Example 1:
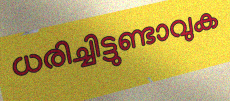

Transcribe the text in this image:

ധരിച്ചിട്ടുണ്ടാവുക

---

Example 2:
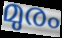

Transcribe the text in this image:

മുരം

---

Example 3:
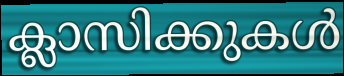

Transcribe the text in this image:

ക്ലാസിക്കുകൾ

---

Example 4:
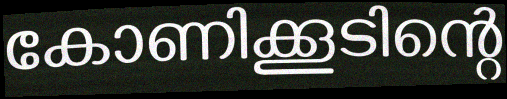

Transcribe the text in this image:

കോണിക്കൂടിന്റെ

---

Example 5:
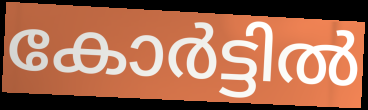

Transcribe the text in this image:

കോർട്ടിൽ